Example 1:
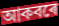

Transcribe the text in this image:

আকবৰে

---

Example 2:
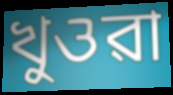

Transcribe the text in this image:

খুওৱা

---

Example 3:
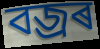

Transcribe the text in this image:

বজ্ৰৰ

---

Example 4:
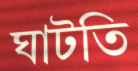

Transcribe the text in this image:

ঘাটতি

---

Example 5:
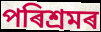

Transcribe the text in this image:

পৰিশ্ৰমৰ